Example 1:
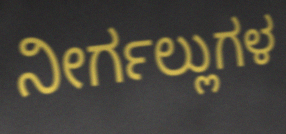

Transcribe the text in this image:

ನೀರ್ಗಲ್ಲುಗಳ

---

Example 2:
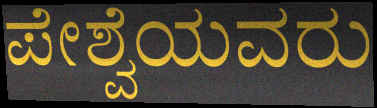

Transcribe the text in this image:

ಪೇಶ್ವೆಯವರು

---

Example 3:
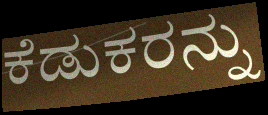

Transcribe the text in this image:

ಕೆಡುಕರನ್ನು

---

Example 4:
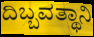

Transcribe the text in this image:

ದಿಬ್ಬವತ್ಥಾನಿ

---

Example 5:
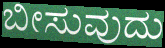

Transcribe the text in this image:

ಬೀಸುವುದು